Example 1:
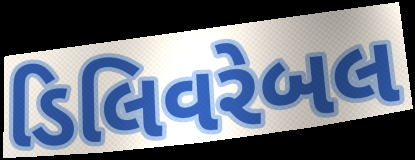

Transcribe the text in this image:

ડિલિવરેબલ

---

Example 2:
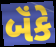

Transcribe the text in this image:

બૅંકે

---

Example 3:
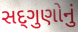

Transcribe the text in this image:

સદ્‌ગુણોનું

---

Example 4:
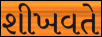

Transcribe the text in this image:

શીખવતે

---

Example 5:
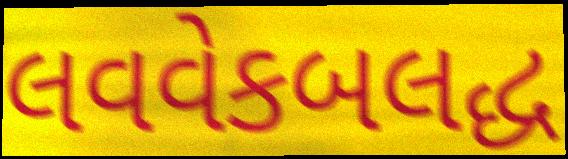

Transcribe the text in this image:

લવવેકબલદ્ધ